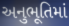
અનુભૂતિમાં